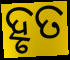
ହୃତ